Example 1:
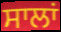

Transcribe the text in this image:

ਸਾਲਾਂ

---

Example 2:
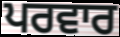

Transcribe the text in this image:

ਪਰਵਾਰ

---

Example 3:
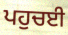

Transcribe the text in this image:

ਪਹੁਚਈ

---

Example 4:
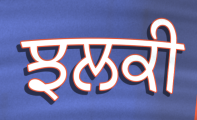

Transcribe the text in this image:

ਝਲਕੀ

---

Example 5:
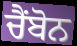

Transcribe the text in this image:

ਚੈਂਬੋਨ